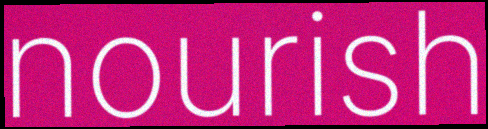
nourish